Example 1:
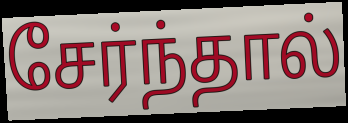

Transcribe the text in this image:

சேர்ந்தால்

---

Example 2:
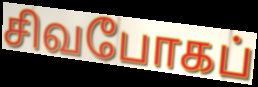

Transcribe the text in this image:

சிவபோகப்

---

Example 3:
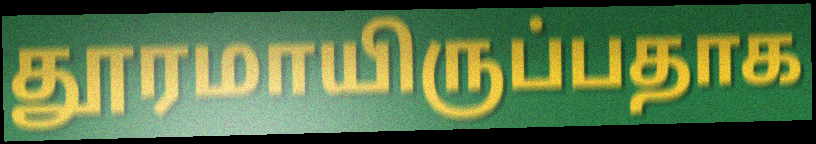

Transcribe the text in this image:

தூரமாயிருப்பதாக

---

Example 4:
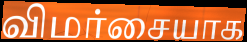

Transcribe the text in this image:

விமர்சையாக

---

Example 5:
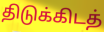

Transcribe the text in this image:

திடுக்கிடத்